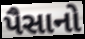
પૈસાનો